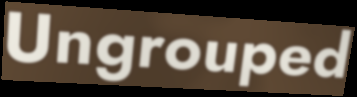
Ungrouped